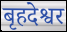
बृहदेश्वर